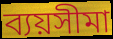
ব্যয়সীমা